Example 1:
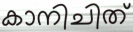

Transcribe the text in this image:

കാനിചിത്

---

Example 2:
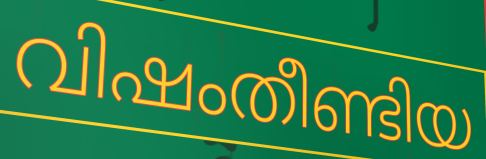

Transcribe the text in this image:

വിഷംതീണ്ടിയ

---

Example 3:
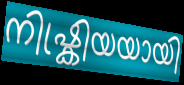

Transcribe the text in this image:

നിഷ്ക്രിയയായി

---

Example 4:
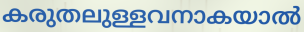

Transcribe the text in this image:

കരുതലുള്ളവനാകയാൽ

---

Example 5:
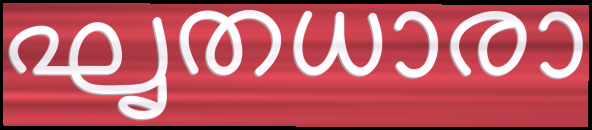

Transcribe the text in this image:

ഘൃതധാരാ